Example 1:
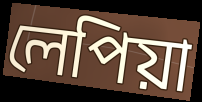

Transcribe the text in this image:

লেপিয়া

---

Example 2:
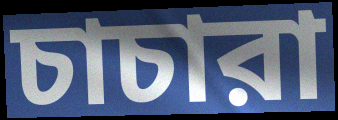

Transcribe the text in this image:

চাচারা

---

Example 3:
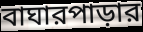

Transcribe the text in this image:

বাঘারপাড়ার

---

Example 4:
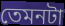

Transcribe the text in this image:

তেমনটা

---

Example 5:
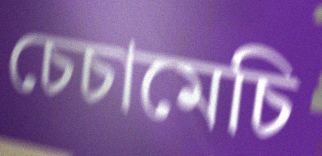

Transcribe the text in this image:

চেচামেচি